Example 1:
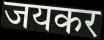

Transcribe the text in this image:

जयकर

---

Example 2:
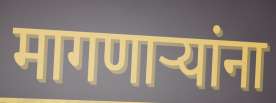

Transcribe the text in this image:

मागणार्‍यांना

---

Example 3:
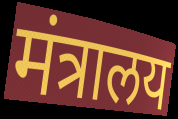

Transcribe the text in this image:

मंत्रालय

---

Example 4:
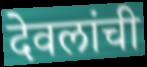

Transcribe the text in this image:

देवलांची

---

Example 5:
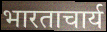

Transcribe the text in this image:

भारताचार्य